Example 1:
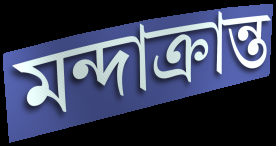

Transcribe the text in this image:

মন্দাক্রান্ত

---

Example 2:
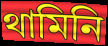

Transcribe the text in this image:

থামিনি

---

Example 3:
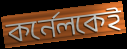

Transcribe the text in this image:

কর্নেলকেই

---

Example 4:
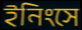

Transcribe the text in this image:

ইনিংসে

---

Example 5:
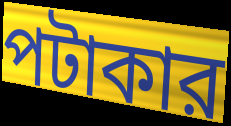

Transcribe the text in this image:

পটাকার